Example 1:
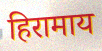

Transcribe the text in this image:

हिरामाय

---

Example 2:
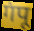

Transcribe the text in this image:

गंपू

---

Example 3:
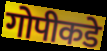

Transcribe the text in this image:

गोपीकडे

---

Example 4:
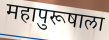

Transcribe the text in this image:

महापुरूषाला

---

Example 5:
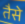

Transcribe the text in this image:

तैसे